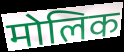
मोलिक